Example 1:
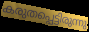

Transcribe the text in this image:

കരുതപ്പെട്ടിരുന്നു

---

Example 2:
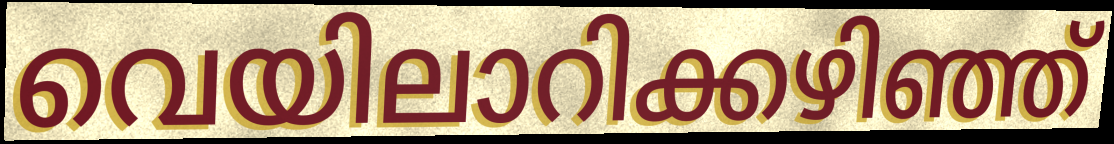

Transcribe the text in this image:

വെയിലാറിക്കഴിഞ്ഞ്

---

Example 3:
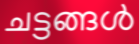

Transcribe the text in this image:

ചട്ടങ്ങൾ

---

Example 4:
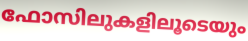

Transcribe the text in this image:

ഫോസിലുകളിലൂടെയും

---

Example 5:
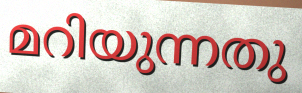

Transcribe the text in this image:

മറിയുന്നതു